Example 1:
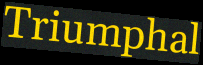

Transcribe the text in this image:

Triumphal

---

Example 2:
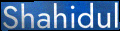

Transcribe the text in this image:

Shahidul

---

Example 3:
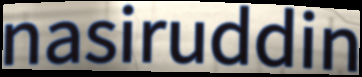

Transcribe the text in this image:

nasiruddin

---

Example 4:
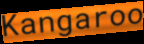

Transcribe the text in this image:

Kangaroo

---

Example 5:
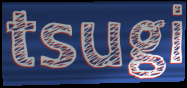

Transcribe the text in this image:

tsugi